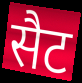
सैट